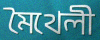
মৈথেলী